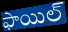
ఫాయిల్